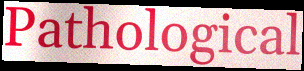
Pathological